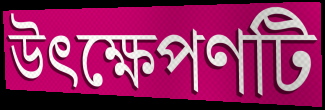
উৎক্ষেপণটি